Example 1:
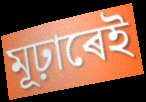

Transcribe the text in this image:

মূঢ়াৰেই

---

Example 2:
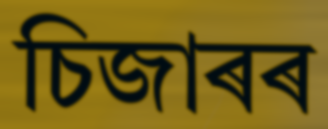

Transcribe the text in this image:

চিজাৰৰ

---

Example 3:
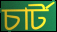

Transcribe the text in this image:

চাৰ্ট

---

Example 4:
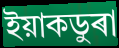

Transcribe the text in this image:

ইয়াকডুৰা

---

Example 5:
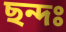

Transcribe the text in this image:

ছন্দঃ